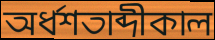
অর্ধশতাব্দীকাল